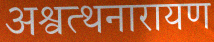
अश्वत्थनारायण